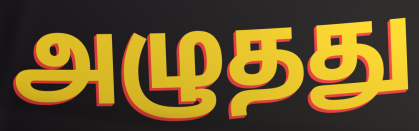
அழுதது